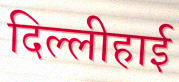
दिल्लीहाई